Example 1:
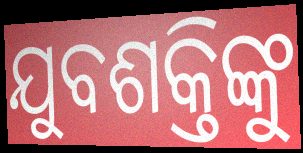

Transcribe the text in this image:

ଯୁବଶକ୍ତିଙ୍କୁ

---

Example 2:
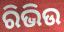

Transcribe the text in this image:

ରିଭିଉ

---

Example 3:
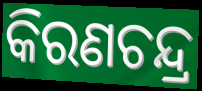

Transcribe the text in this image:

କିରଣଚନ୍ଦ୍ର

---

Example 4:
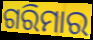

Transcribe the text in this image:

ଗରିମାର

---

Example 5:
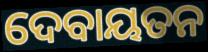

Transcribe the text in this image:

ଦେବାୟତନ